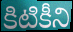
కిటికీని